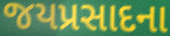
જયપ્રસાદના